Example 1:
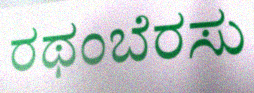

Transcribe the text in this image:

ರಥಂಬೆರಸು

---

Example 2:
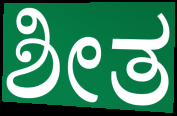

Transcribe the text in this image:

ಶೀತ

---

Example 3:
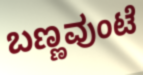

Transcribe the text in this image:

ಬಣ್ಣವುಂಟೆ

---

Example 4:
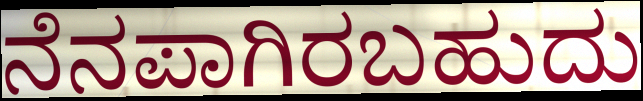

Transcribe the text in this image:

ನೆನಪಾಗಿರಬಹುದು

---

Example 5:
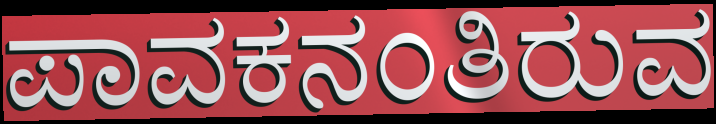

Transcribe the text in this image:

ಪಾವಕನಂತಿರುವ